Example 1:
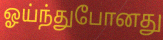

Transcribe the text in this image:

ஓய்ந்துபோனது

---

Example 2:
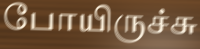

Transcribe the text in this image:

போயிருச்சு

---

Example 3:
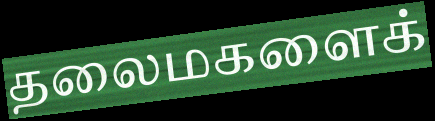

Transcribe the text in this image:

தலைமகளைக்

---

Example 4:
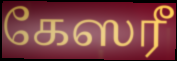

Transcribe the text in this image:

கேஸரீ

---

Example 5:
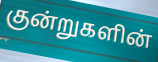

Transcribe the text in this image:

குன்றுகளின்